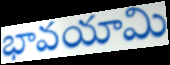
భావయామి